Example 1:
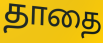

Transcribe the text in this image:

தாதை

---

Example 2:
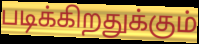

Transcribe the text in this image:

படிக்கிறதுக்கும்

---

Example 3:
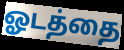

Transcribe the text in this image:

ஓடத்தை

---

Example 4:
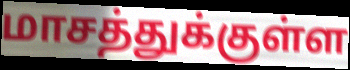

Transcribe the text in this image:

மாசத்துக்குள்ள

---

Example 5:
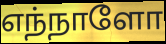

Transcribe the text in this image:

எந்நாளோ